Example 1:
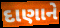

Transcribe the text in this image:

દાણાને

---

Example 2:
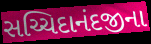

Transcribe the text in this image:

સચ્ચિદાનંદજીના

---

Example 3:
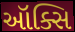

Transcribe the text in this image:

ઑક્સિ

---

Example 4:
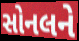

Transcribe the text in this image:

સોનલને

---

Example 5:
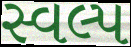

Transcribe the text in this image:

સ્વલ્પ